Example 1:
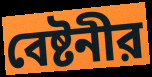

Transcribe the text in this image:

বেষ্টনীর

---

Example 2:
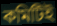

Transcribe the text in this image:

কমিটিই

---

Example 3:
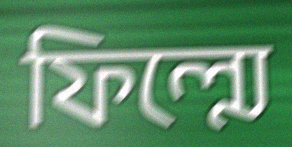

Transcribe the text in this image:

ফিল্মে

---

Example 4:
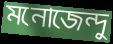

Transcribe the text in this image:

মনোজেন্দু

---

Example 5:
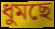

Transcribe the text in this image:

ধুমছে